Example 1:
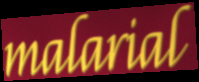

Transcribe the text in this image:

malarial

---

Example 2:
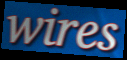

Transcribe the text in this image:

wires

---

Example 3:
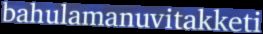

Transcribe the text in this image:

bahulamanuvitakketi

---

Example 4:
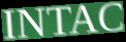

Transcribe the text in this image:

INTAC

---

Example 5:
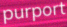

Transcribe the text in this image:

purport